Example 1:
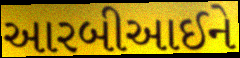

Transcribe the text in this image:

આરબીઆઈને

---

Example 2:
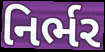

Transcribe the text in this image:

નિર્ભર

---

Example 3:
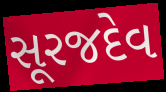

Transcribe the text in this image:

સૂરજદેવ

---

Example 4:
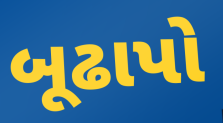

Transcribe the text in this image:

બૂઢાપો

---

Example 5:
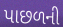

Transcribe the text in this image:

પાછળની